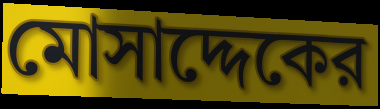
মোসাদ্দেকের